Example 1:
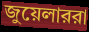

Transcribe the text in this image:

জুয়েলাররা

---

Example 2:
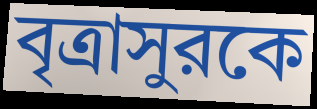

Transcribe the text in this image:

বৃত্রাসুরকে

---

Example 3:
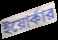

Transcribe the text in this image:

ইয়োর্কার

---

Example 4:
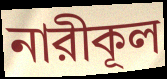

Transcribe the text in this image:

নারীকূল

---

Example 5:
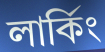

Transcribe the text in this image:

লার্কিং